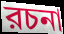
রচনা